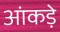
आंकड़े